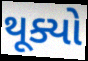
થૂક્યો